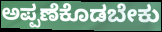
ಅಪ್ಪಣೆಕೊಡಬೇಕು